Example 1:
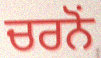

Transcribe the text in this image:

ਚਰਨੋਂ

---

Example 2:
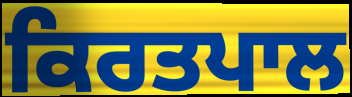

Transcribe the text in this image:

ਕਿਰਤਪਾਲ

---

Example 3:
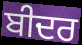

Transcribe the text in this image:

ਬੀਦਰ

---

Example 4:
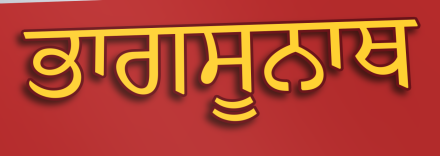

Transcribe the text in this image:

ਭਾਗਸੂਨਾਥ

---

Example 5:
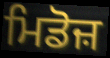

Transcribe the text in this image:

ਮਿਡੋਜ਼